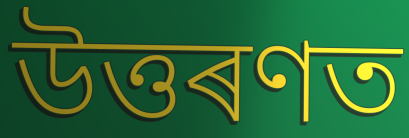
উত্তৰণত